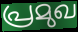
പ്രമുഖ